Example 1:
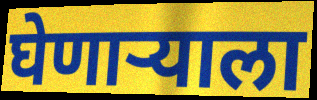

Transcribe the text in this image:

घेणार्‍याला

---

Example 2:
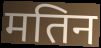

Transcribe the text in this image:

मतिन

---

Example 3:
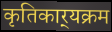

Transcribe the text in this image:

कृतिकार्यक्रम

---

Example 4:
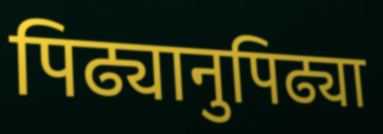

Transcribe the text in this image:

पिढ्यानुपिढ्या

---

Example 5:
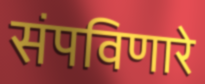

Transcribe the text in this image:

संपविणारे